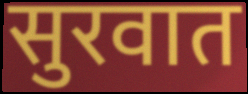
सुरवात